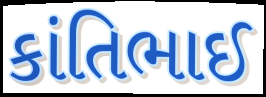
કાંતિભાઈ